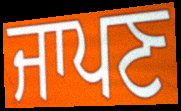
ਜਾਪਣ